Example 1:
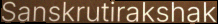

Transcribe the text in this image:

Sanskrutirakshak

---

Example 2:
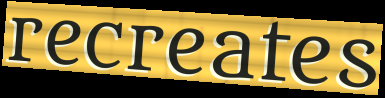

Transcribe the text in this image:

recreates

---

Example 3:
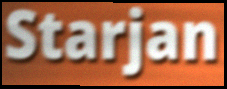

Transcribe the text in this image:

Starjan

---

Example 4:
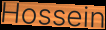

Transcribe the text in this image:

Hossein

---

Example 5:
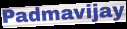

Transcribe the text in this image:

Padmavijay